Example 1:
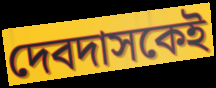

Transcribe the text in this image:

দেবদাসকেই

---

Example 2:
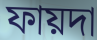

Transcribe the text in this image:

ফায়দা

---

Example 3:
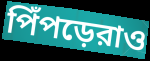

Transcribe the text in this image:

পিঁপড়েরাও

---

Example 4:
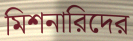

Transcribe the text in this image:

মিশনারিদের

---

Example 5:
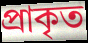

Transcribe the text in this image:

প্রাকৃত